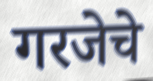
गरजेचे